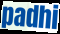
padhi